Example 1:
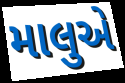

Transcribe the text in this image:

માલુએ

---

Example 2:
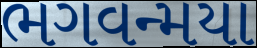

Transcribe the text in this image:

ભગવન્મયા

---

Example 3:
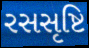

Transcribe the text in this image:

રસસૃષ્ટિ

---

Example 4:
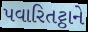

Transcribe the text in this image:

પવારિતટ્ઠાને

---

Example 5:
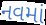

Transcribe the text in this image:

નવમાં